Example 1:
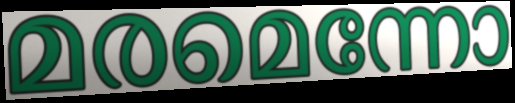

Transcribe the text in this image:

മരമെന്നോ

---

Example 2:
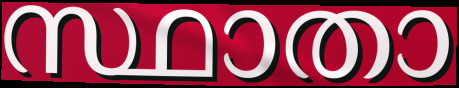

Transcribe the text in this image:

സ്ഥാതാ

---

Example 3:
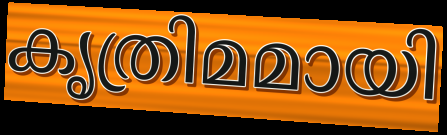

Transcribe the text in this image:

കൃത്രിമമായി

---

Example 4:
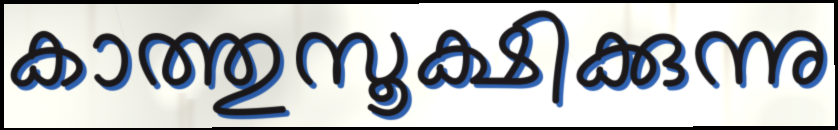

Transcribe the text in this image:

കാത്തുസൂക്ഷിക്കുന്നു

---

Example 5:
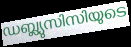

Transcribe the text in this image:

ഡബ്ല്യുസിസിയുടെ